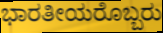
ಭಾರತೀಯರೊಬ್ಬರು